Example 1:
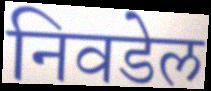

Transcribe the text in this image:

निवडेल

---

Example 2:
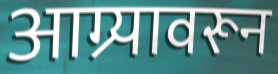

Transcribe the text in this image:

आग्र्यावरून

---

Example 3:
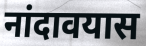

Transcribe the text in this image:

नांदावयास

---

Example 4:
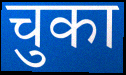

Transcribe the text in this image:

चुका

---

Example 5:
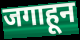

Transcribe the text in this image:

जगाहून